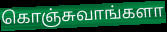
கொஞ்சுவாங்களா